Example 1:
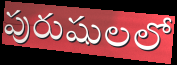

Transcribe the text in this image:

పురుషులలో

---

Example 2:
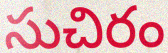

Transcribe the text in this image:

సుచిరం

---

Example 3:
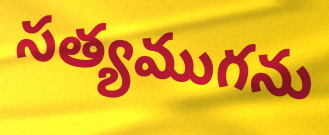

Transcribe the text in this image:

సత్యముగను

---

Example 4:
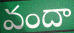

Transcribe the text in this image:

వందా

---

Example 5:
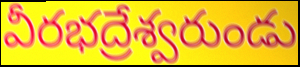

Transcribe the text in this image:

వీరభద్రేశ్వరుండు